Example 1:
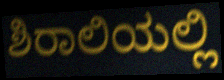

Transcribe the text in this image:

ಶಿರಾಲಿಯಲ್ಲಿ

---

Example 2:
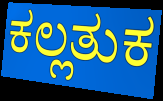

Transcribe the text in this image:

ಕಲ್ಲತುಕ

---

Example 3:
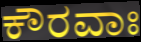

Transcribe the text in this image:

ಕೌರವಾಃ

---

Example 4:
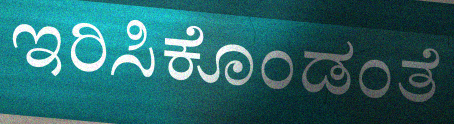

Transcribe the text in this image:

ಇರಿಸಿಕೊಂಡಂತೆ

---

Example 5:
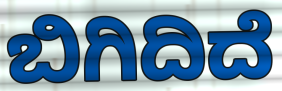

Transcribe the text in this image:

ಬಿಗಿದಿದೆ